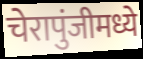
चेरापुंजीमध्ये